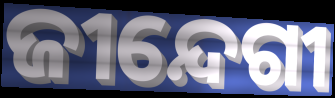
ଜୀନ୍ଦେଗୀ